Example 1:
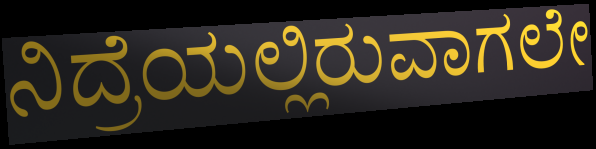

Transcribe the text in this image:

ನಿದ್ರೆಯಲ್ಲಿರುವಾಗಲೇ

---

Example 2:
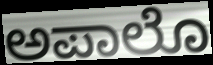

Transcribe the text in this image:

ಅಪಾಲೊ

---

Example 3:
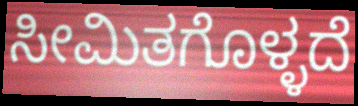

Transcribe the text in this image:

ಸೀಮಿತಗೊಳ್ಳದೆ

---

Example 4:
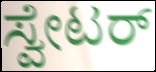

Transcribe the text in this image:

ಸ್ವೇಟರ್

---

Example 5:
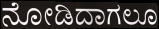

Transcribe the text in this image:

ನೋಡಿದಾಗಲೂ